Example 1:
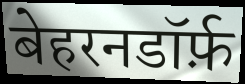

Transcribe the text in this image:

बेहरनडॉर्फ़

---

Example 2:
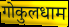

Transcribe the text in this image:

गोकुलधाम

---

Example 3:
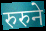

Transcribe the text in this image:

रुरुने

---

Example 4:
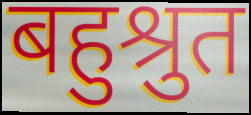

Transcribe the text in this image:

बहुश्रुत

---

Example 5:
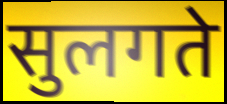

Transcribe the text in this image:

सुलगते